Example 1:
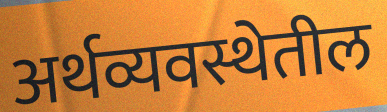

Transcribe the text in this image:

अर्थव्यवस्थेतील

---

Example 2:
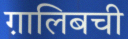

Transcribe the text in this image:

ग़ालिबची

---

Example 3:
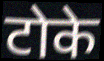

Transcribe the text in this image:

टोके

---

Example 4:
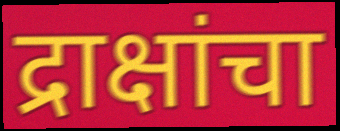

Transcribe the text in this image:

द्राक्षांचा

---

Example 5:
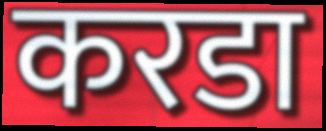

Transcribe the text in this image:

करडा